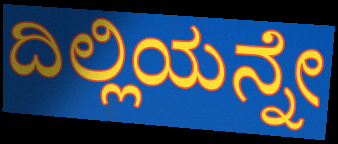
ದಿಲ್ಲಿಯನ್ನೇ